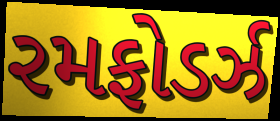
રમફોડર્ઝ